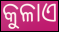
କୁଳାଏ